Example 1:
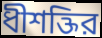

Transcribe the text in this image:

ধীশক্তির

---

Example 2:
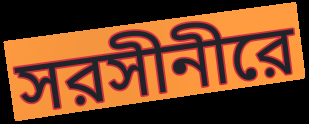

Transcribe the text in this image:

সরসীনীরে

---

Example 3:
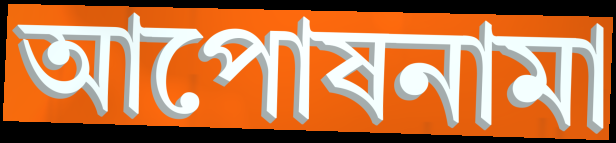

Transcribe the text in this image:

আপোষনামা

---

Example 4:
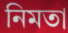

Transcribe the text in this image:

নিমতা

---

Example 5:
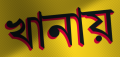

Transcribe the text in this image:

খানায়